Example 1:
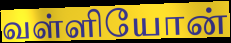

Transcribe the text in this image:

வள்ளியோன்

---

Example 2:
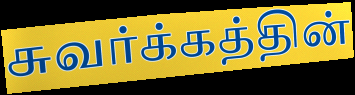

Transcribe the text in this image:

சுவர்க்கத்தின்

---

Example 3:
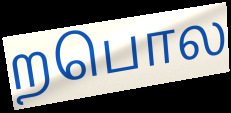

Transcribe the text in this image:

றபொல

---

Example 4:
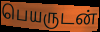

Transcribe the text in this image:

பெயருடன்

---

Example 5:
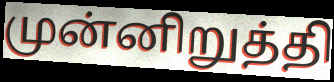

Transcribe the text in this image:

முன்னிறுத்தி